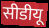
सीडीयू